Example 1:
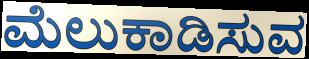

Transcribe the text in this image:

ಮೆಲುಕಾಡಿಸುವ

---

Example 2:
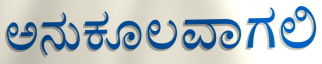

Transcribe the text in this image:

ಅನುಕೂಲವಾಗಲಿ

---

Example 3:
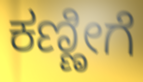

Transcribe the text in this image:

ಕಣ್ಣೀಗೆ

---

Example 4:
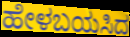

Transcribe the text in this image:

ಹೇಳಬಯಸಿದ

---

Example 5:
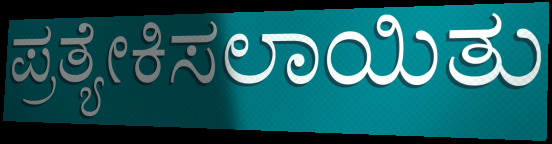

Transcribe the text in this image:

ಪ್ರತ್ಯೇಕಿಸಲಾಯಿತು